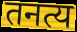
तनत्य